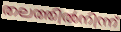
തലത്തിൽനിന്ന്